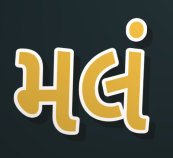
મલં